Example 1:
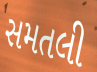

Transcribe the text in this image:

સમતલી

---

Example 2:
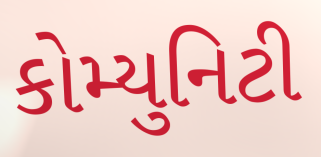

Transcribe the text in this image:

કોમ્યુનિટી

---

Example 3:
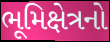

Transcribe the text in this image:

ભૂમિક્ષેત્રનો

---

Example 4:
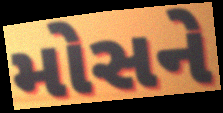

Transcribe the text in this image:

મોસને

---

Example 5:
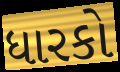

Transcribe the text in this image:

ધારકો